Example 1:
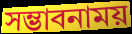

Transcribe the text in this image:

সম্ভাবনাময়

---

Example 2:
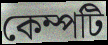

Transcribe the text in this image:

কেম্পটি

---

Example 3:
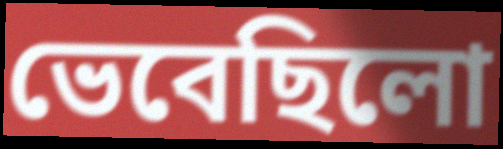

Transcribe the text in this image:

ভেবেছিলো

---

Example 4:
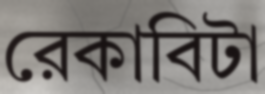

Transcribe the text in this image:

রেকাবিটা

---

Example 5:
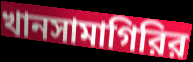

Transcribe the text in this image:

খানসামাগিরির